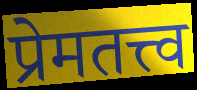
प्रेमतत्त्व